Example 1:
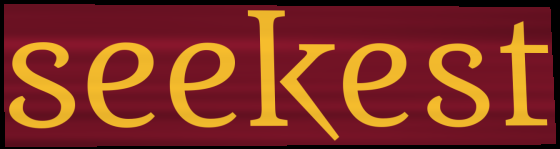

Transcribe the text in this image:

seekest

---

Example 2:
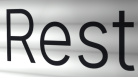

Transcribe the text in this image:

Rest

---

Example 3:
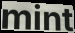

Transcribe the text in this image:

mint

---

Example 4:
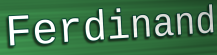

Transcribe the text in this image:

Ferdinand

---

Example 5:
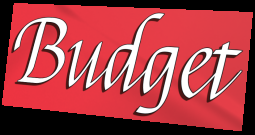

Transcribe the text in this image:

Budget